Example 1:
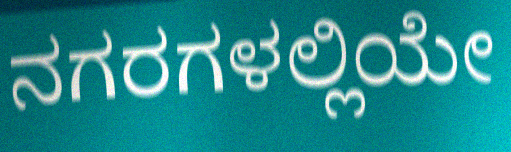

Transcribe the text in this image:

ನಗರಗಳಲ್ಲಿಯೇ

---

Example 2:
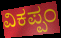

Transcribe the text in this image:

ವಿಕಪ್ಪಂ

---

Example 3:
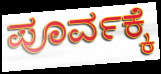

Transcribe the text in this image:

ಪೂರ್ವಕ್ಕೆ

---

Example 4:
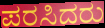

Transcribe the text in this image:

ಪರಸಿದರು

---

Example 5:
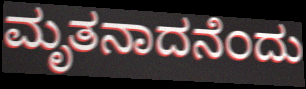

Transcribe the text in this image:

ಮೃತನಾದನೆಂದು